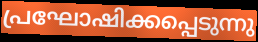
പ്രഘോഷിക്കപ്പെടുന്നു